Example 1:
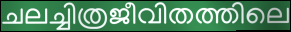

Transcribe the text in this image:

ചലച്ചിത്രജീവിതത്തിലെ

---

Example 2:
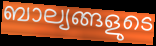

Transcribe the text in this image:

ബാല്യങ്ങളുടെ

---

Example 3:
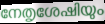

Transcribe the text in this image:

നേതൃശേഷിയും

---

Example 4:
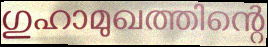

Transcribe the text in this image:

ഗുഹാമുഖത്തിന്റെ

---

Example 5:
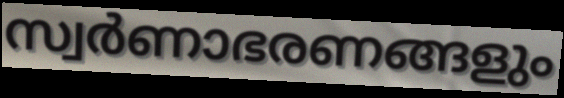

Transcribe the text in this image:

സ്വർണാഭരണങ്ങളും